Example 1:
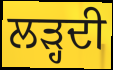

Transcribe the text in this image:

ਲੜ੍ਹਦੀ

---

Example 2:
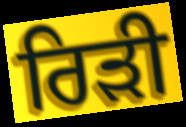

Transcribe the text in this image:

ਰਿੜੀ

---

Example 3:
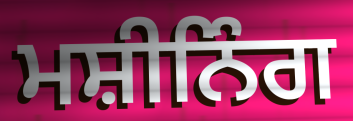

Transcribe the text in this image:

ਮਸ਼ੀਨਿੰਗ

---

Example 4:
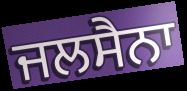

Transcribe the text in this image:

ਜਲਸੈਨਾ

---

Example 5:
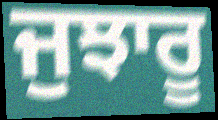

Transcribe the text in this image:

ਜੁਝਾਰੂ